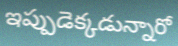
ఇప్పుడెక్కడున్నారో